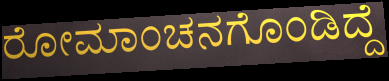
ರೋಮಾಂಚನಗೊಂಡಿದ್ದೆ